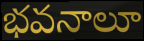
భవనాలూ